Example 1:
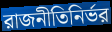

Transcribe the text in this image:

রাজনীতিনির্ভর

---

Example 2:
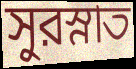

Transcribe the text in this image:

সুরস্নাত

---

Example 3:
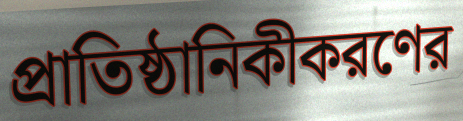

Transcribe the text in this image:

প্রাতিষ্ঠানিকীকরণের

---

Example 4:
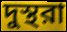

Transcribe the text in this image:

দুস্থরা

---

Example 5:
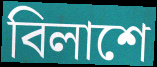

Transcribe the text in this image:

বিলাশে